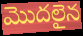
మొదలైన